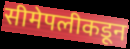
सीमेपलीकडून